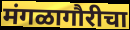
मंगळागौरीचा